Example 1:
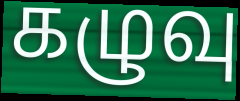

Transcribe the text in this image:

கழுவு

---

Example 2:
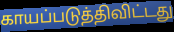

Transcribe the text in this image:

காயப்படுத்திவிட்டது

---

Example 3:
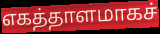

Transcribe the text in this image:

எகத்தாளமாகச்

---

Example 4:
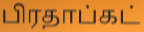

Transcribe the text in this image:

பிரதாப்கட்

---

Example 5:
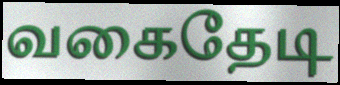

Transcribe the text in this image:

வகைதேடி